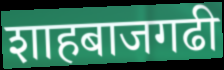
शाहबाजगढी